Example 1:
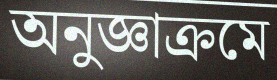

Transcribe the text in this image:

অনুজ্ঞাক্রমে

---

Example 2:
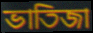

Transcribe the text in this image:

ভাতিজা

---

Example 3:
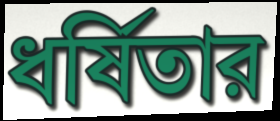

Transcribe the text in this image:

ধর্ষিতার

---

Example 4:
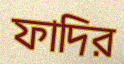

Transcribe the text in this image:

ফাদির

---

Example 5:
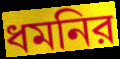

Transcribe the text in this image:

ধমনির